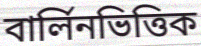
বার্লিনভিত্তিক